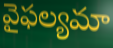
వైఫల్యమా